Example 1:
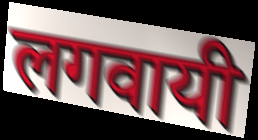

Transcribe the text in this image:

लगवायी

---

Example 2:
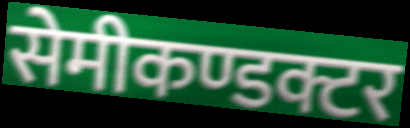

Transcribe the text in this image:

सेमीकण्डक्टर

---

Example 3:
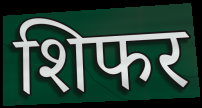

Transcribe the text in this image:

शिफर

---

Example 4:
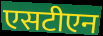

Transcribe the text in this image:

एसटीएन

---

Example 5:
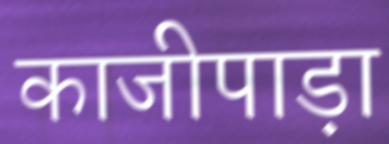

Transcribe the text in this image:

काजीपाड़ा